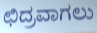
ಛಿದ್ರವಾಗಲು